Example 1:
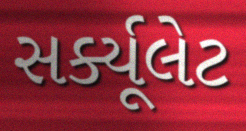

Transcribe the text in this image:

સર્ક્યૂલેટ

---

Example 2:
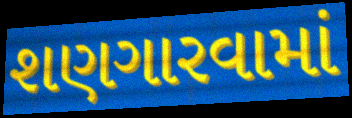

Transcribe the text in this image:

શણગારવામાં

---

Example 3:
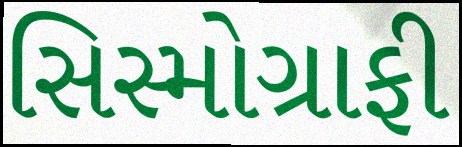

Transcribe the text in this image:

સિસ્મોગ્રાફી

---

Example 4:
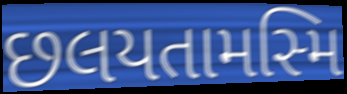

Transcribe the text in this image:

છલયતામસ્મિ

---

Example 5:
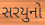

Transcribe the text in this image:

સરયુનો